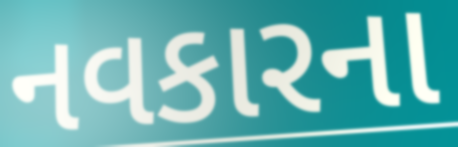
નવકારના